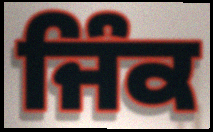
ਜਿੰਕ